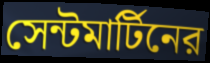
সেন্টমার্টিনের